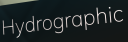
Hydrographic